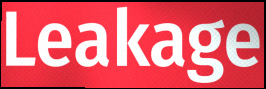
Leakage